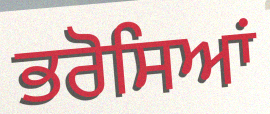
ਭਰੋਸਿਆਂ